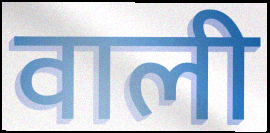
वाली